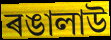
ৰঙালাউ